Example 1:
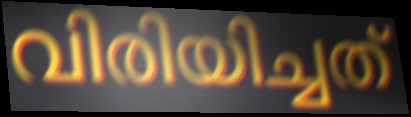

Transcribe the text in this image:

വിരിയിച്ചത്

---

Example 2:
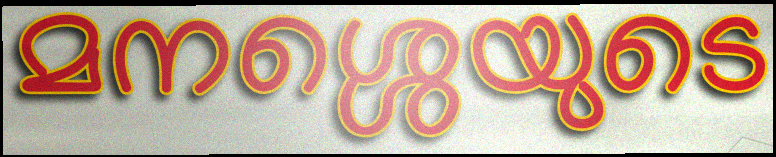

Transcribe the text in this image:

മനശ്ശെയുടെ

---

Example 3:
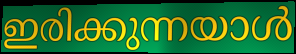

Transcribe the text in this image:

ഇരിക്കുന്നയാൾ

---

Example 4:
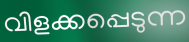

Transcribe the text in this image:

വിളക്കപ്പെടുന്ന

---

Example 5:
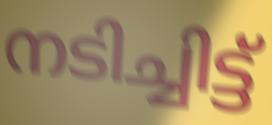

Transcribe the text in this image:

നടിച്ചിട്ട്